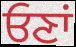
ਓਣਾਂ